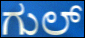
ಗುಲ್